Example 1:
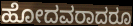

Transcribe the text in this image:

ಹೋದವರಾದರೂ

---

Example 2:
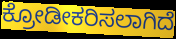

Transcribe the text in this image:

ಕ್ರೋಡೀಕರಿಸಲಾಗಿದೆ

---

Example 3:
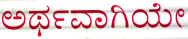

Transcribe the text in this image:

ಅರ್ಥವಾಗಿಯೇ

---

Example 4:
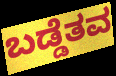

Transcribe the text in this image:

ಬಡ್ಡೆತವ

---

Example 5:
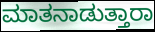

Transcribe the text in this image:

ಮಾತನಾಡುತ್ತಾರಾ